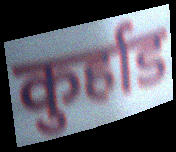
कुर्हाड